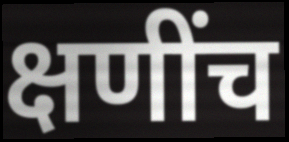
क्षणींच